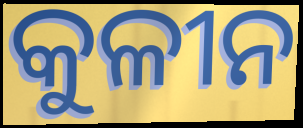
କୁଳୀନ